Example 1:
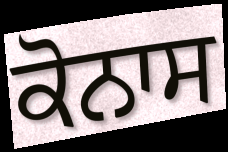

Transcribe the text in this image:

ਕੋਨਾਸ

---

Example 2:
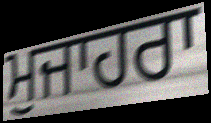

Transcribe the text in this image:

ਮੁਜਾਹਰਾ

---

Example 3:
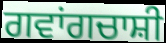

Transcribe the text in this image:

ਗਵਾਂਗਚਾਸ਼ੀ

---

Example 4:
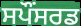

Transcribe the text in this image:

ਸਪੌਂਸਰਡ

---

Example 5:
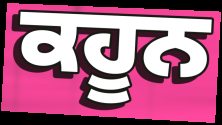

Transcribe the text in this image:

ਕਹੂਨ